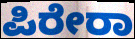
ಪಿರೇರಾ